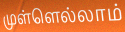
முள்ளெல்லாம்